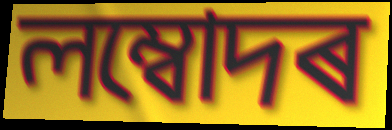
লম্বোদৰ